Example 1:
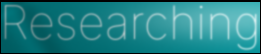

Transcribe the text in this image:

Researching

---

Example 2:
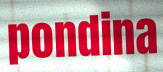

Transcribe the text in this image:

pondina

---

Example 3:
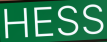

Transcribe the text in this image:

HESS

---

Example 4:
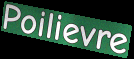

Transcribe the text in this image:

Poilievre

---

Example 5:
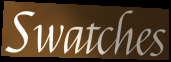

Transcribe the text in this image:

Swatches